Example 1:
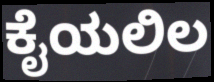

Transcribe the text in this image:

ಕೈಯಲಿಲ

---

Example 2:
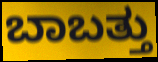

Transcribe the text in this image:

ಬಾಬತ್ತು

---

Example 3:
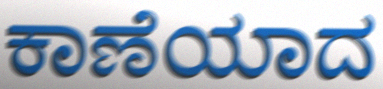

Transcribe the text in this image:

ಕಾಣೆಯಾದ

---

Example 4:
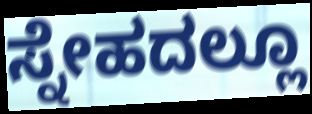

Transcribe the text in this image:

ಸ್ನೇಹದಲ್ಲೂ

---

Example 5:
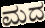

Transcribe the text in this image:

ಮದ